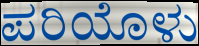
ಪರಿಯೊಳು